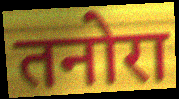
तनोरा